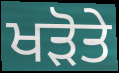
ਖੜੋਤੇ